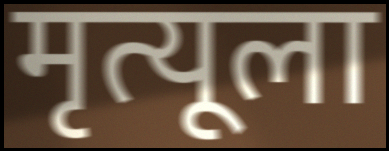
मृत्यूला